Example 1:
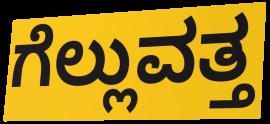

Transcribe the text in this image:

ಗೆಲ್ಲುವತ್ತ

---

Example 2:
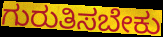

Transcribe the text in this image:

ಗುರುತಿಸಬೇಕು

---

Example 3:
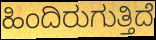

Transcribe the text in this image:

ಹಿಂದಿರುಗುತ್ತಿದೆ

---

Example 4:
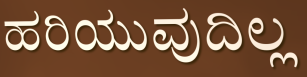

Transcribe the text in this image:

ಹರಿಯುವುದಿಲ್ಲ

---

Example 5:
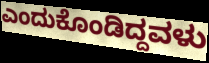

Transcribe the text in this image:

ಎಂದುಕೊಂಡಿದ್ದವಳು